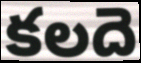
కలదె